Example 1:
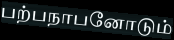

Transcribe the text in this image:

பற்பநாபனோடும்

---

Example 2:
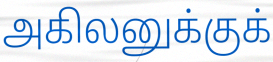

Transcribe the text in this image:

அகிலனுக்குக்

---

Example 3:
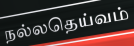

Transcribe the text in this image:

நல்லதெய்வம்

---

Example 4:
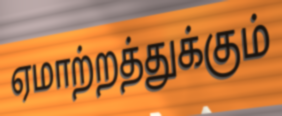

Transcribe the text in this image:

ஏமாற்றத்துக்கும்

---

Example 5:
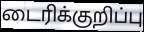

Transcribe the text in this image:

டைரிக்குறிப்பு